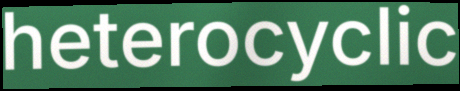
heterocyclic